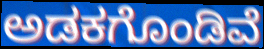
ಅಡಕಗೊಂಡಿವೆ